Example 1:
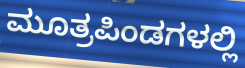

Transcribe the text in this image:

ಮೂತ್ರಪಿಂಡಗಳಲ್ಲಿ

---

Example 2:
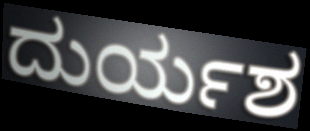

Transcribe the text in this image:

ದುರ್ಯಶ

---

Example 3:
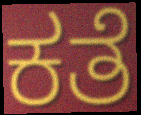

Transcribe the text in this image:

ಕತೆ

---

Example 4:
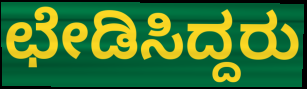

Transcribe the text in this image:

ಛೇಡಿಸಿದ್ದರು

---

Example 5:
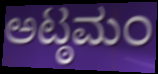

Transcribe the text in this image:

ಅಟ್ಠಮಂ